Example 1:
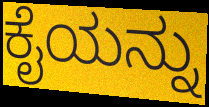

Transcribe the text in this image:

ಕೈಯನ್ನು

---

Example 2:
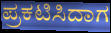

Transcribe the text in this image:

ಪ್ರಕಟಿಸಿದಾಗ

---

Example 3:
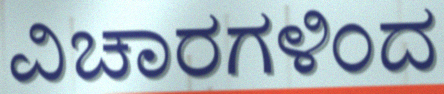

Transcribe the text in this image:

ವಿಚಾರಗಳಿಂದ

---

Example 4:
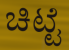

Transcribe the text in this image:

ಚಿಟ್ಟೆ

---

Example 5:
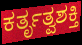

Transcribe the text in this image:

ಕರ್ತೃತ್ವಶಕ್ತಿ